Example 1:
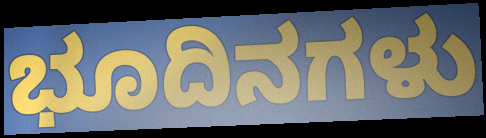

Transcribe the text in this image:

ಭೂದಿನಗಳು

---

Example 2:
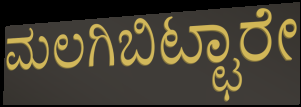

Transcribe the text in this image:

ಮಲಗಿಬಿಟ್ಟಾರೇ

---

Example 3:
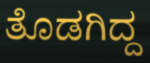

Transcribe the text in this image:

ತೊಡಗಿದ್ದ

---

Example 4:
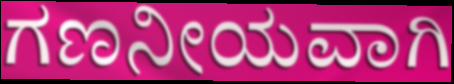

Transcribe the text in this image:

ಗಣನೀಯವಾಗಿ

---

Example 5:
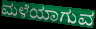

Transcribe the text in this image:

ಮಳೆಯಾಗುವ